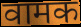
वामक